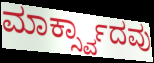
ಮಾರ್ಕ್ಸ್ವಾದವು